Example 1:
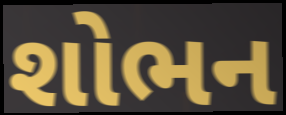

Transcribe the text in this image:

શોભન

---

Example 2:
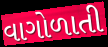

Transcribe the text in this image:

વાગોળાતી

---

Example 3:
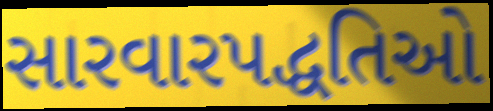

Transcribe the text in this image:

સારવારપદ્ધતિઓ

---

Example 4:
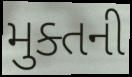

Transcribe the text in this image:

મુક્તની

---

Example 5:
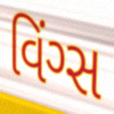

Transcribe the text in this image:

વિંગ્સ